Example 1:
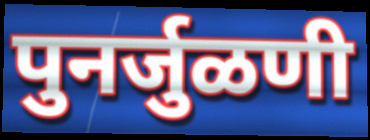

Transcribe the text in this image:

पुनर्जुळणी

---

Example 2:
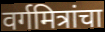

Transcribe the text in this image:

वर्गमित्रांचा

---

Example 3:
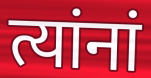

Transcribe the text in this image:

त्यांनां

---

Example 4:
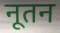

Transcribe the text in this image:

नूतन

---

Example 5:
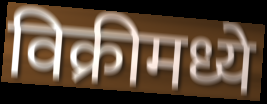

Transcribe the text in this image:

विक्रीमध्ये